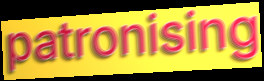
patronising